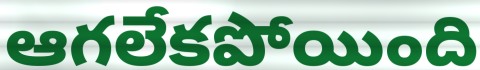
ఆగలేకపోయింది